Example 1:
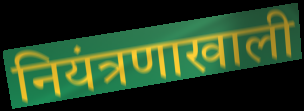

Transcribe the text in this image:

नियंत्रणाखाली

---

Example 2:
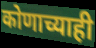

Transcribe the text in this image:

कोणाच्याही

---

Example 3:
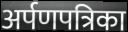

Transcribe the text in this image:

अर्पणपत्रिका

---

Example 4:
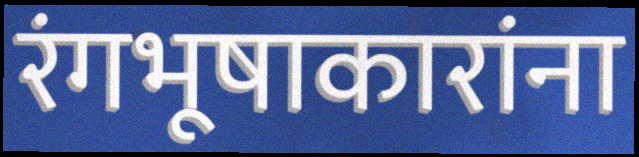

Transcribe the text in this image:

रंगभूषाकारांना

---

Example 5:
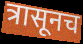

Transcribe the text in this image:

त्रासूनच